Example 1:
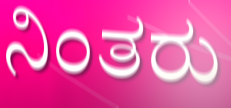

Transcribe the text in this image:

ನಿಂತರು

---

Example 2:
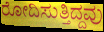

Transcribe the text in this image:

ರೋದಿಸುತ್ತಿದ್ದವು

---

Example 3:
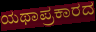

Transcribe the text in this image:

ಯಥಾಪ್ರಕಾರದ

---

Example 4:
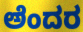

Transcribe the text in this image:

ಅೆಂದರ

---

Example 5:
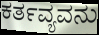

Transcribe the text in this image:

ಕರ್ತವ್ಯವನು